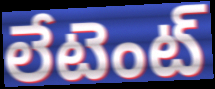
లేటెంట్